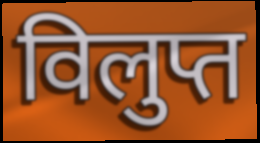
विलुप्त